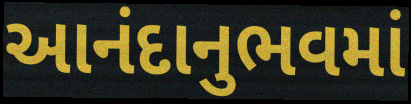
આનંદાનુભવમાં